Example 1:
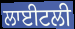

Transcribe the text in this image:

ਲਾਈਟਲੀ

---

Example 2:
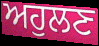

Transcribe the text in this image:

ਅਹੁਲਣ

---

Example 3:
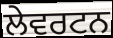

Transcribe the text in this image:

ਲੇਵਰਟਨ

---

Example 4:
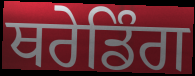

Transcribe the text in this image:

ਥਰੇਡਿੰਗ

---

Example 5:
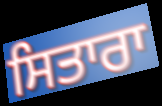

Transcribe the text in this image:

ਸਿਤਾਰਾ